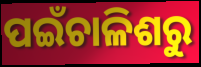
ପଇଁଚାଳିଶରୁ